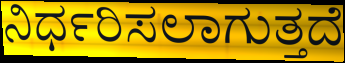
ನಿರ್ಧರಿಸಲಾಗುತ್ತದೆ